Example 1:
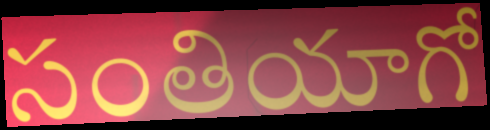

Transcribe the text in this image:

సంతియాగో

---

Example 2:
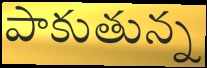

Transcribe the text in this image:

పాకుతున్న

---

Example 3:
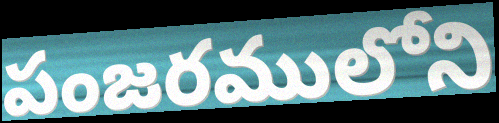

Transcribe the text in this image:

పంజరములోని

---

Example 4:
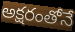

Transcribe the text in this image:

అక్షరంతోనే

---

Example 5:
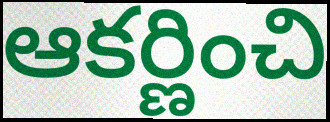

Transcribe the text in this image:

ఆకర్ణించి